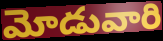
మోడువారి